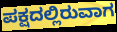
ಪಕ್ಷದಲ್ಲಿರುವಾಗ